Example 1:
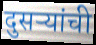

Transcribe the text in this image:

दुसऱ्यांची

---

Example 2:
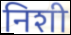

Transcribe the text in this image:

निशी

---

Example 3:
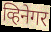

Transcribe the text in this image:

व्हिनेगर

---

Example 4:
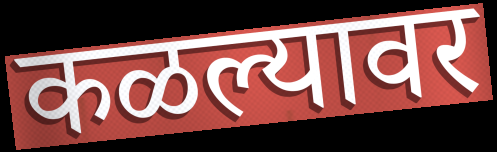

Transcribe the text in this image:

कळल्यावर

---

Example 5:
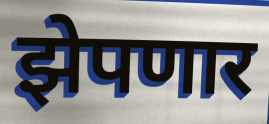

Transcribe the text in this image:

झेपणार